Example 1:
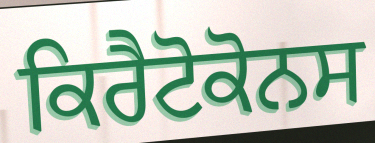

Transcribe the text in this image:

ਕਿਰੈਟੋਕੋਨਸ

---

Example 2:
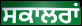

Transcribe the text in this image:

ਸਕਾਲਰਾਂ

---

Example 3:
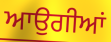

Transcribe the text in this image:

ਆਉਗੀਆਂ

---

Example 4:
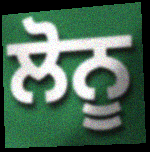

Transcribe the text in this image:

ਲੋਨੂ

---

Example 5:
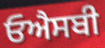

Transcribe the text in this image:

ਓਐਸਬੀ